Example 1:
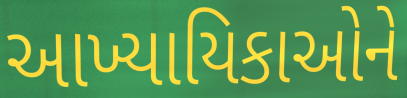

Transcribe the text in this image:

આખ્યાયિકાઓને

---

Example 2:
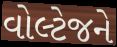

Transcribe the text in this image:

વોલ્ટેજને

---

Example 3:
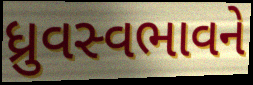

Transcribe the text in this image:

ધ્રુવસ્વભાવને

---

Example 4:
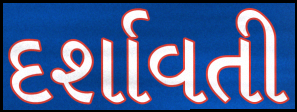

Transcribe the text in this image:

દર્શાવતી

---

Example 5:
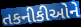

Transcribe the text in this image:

તકનીકીઓને